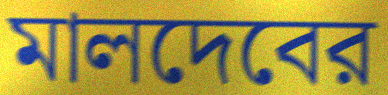
মালদেবের